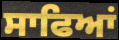
ਸਾਫਿਆਂ